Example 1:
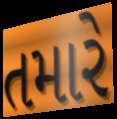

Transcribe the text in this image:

તમારે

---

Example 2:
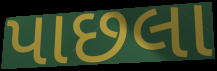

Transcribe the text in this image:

પાછલા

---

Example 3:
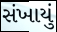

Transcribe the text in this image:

સંખાયું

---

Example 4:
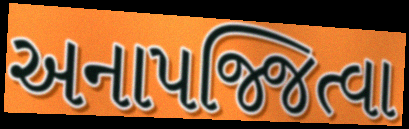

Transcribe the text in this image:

અનાપજ્જિત્વા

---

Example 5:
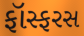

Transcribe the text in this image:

ફૉસ્ફરસ